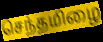
செந்தமிழை